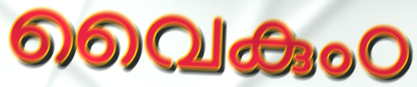
വൈകുംഠ